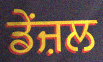
ਡੇਂਜ਼ਲ